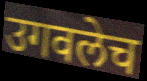
उगवलेच